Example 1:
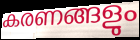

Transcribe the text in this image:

കരണങ്ങളും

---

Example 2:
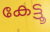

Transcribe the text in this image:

കേട്ടൂ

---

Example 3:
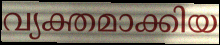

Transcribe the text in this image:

വ്യക്തമാക്കിയ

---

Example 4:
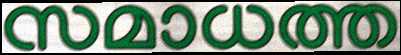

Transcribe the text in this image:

സമാധത്ത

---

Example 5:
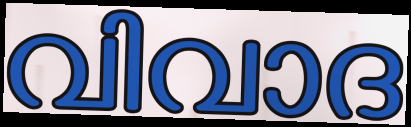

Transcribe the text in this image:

വിവാദ